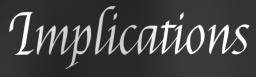
Implications